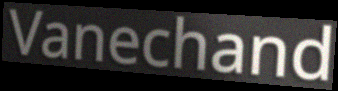
Vanechand